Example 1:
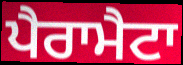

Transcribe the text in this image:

ਪੈਰਾਮੈਟਾ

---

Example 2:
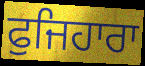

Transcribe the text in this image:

ਫੁਜਿਹਾਰਾ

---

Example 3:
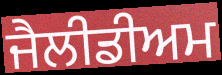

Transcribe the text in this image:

ਜੈਲੀਡੀਅਮ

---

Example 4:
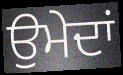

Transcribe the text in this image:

ਉਮੇਦਾਂ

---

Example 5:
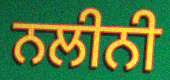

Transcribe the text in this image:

ਨਲੀਨੀ